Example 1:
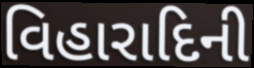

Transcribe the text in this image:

વિહારાદિની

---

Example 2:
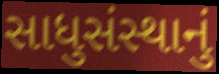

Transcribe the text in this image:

સાધુસંસ્થાનું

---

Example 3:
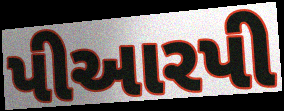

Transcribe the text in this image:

પીઆરપી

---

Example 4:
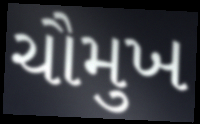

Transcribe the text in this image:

ચૌમુખ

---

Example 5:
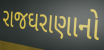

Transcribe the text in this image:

રાજઘરાણાનો